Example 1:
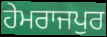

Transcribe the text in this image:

ਹੇਮਰਾਜਪੁਰ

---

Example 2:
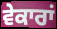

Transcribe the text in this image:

ਵੇਕਾਰਾਂ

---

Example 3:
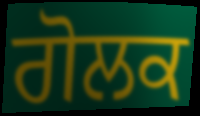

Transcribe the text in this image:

ਗੋਲਕ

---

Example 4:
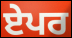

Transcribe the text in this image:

ਏਪਰ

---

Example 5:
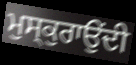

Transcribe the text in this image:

ਮੁਸ੍ਕੁਰਾਉਂਦੀ